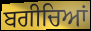
ਬਗੀਚਿਆਂ